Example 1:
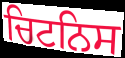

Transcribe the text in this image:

ਚਿਟਨਿਸ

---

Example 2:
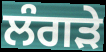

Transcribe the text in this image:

ਲੰਗੜੇ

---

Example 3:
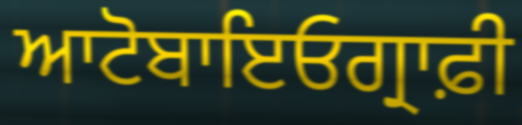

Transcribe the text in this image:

ਆਟੋਬਾਇਓਗ੍ਰਾਫ਼ੀ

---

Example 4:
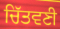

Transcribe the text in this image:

ਚਿੱਤਵਣੀ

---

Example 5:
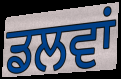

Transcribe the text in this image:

ਡਲਵਾਂ